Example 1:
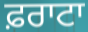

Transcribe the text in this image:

ਫ਼ਰਾਟਾ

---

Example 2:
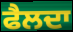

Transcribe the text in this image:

ਫੈਲਦਾ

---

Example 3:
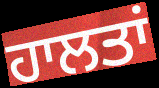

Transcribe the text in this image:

ਹਾਲਤਾਂ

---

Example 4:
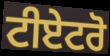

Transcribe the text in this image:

ਟੀਏਟਰੋ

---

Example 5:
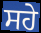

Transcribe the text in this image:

ਸਹੇ